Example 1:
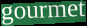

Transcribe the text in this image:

gourmet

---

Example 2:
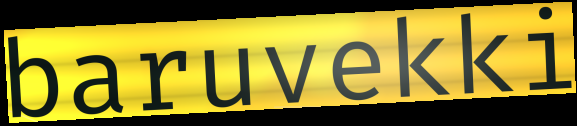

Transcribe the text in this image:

baruvekki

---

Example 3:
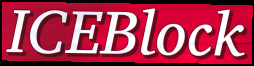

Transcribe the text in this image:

ICEBlock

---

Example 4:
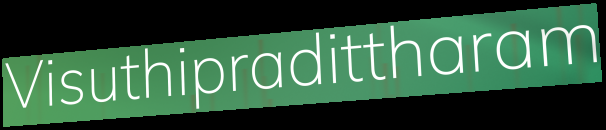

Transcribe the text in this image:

Visuthipradittharam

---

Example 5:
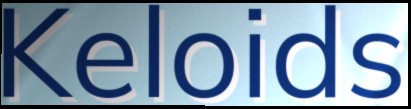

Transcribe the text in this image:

Keloids